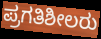
ಪ್ರಗತಿಶೀಲರು